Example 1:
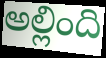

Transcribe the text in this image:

అల్లింది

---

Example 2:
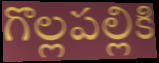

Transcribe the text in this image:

గొల్లపల్లికి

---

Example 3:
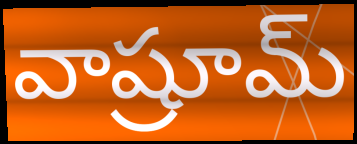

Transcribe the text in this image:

వాష్రూమ్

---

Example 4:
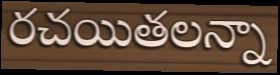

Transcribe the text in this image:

రచయితలన్నా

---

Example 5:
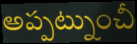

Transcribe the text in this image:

అప్పట్నుంచీ